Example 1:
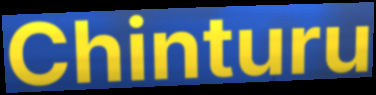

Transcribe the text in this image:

Chinturu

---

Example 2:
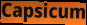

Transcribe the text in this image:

Capsicum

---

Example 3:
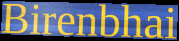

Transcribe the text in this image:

Birenbhai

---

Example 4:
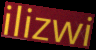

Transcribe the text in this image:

ilizwi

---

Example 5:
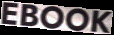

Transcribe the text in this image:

EBOOK